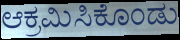
ಆಕ್ರಮಿಸಿಕೊಂಡು